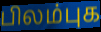
பிலம்புக